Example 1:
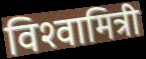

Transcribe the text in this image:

विश्वामित्री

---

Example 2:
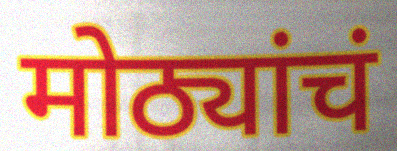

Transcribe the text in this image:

मोठ्यांचं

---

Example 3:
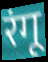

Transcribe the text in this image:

रंगू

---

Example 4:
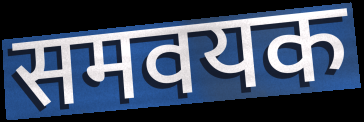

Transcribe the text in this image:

समवयक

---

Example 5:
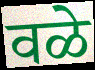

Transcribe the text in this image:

वळे